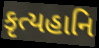
કૃત્યહાનિ